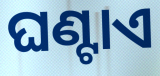
ଘଣ୍ଟାଏ